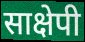
साक्षेपी